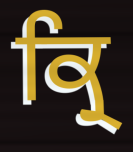
ਕ੍ਰਿ